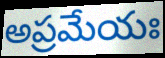
అప్రమేయః